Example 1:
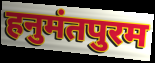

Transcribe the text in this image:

हनुमंतपुरम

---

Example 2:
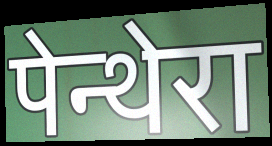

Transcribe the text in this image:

पेन्थेरा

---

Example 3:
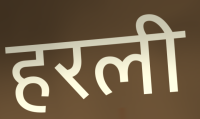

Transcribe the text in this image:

हरली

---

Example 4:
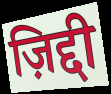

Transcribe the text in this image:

ज़िद्दी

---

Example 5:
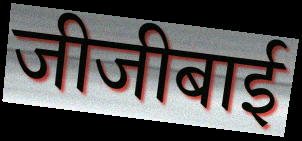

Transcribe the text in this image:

जीजीबाई